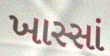
ખાસ્સાં